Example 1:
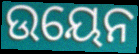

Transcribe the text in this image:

ଉୟେନ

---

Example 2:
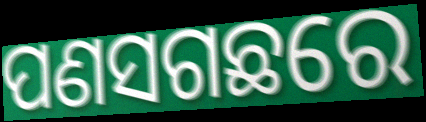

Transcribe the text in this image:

ପଣସଗଛରେ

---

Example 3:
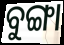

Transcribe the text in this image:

ବୁଙ୍ଗା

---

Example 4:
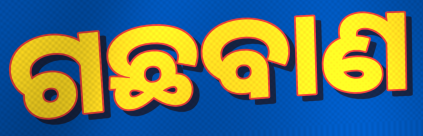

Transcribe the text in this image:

ଗଛବାଣ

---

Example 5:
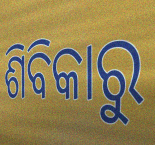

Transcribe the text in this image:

ଶିବିକାରୁ